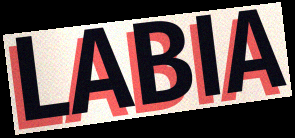
LABIA